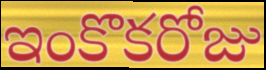
ఇంకొకరోజు